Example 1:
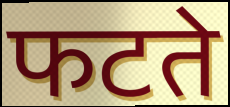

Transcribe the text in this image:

फटते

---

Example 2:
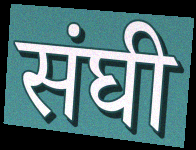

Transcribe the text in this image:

संघी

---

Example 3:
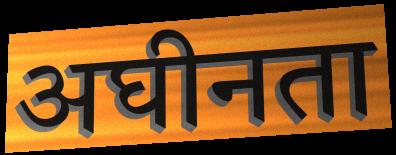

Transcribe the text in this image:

अघीनता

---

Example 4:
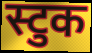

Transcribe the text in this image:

स्टुक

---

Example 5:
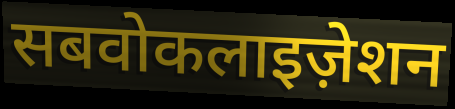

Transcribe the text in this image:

सबवोकलाइज़ेशन